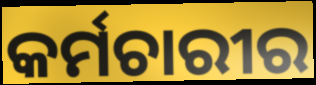
କର୍ମଚାରୀର